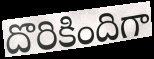
దొరికిందిగా